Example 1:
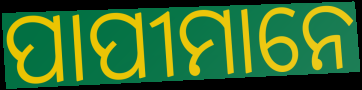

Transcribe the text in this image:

ପାପୀମାନେ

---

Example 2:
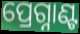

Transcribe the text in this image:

ପ୍ରେଗ୍ନାଣ୍ଟ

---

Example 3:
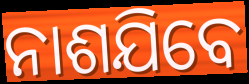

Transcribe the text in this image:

ନାଶଯିବେ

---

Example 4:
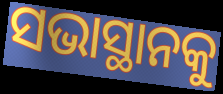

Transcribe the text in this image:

ସଭାସ୍ଥାନକୁ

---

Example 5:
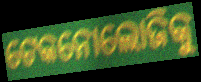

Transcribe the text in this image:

ଟେକନୋଲୋଜିକୁ